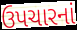
ઉપચારનાં